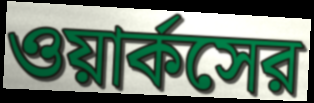
ওয়ার্কসের